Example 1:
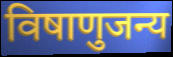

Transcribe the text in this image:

विषाणुजन्य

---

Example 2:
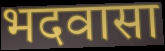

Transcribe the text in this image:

भदवासा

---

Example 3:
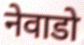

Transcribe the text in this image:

नेवाडो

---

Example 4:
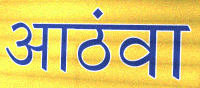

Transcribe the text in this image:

आठंवा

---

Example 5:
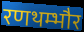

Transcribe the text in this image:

रणथम्भौर